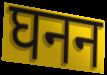
घनन